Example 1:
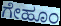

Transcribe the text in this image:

ಗೇಹೂಂ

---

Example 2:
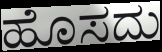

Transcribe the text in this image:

ಹೊಸದು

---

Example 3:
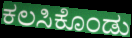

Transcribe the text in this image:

ಕಲಸಿಕೊಂಡು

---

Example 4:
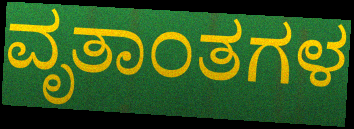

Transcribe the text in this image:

ವೃತಾಂತಗಳ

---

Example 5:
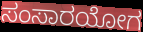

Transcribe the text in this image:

ಸಂಸಾರಯೋಗ